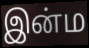
இன்ம